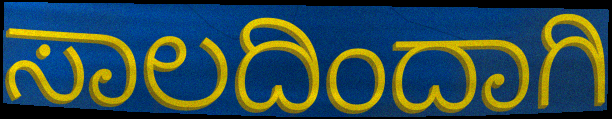
ಸಾಲದಿಂದಾಗಿ